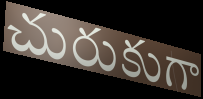
చురుకుగా